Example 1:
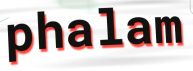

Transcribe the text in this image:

phalam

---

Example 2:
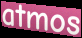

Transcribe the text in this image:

atmos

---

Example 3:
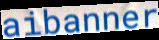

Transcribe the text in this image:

aibanner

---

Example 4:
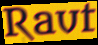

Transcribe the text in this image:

Raut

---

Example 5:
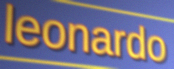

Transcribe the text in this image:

leonardo